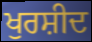
ਖੁਰਸ਼ੀਦ